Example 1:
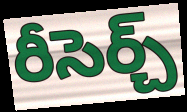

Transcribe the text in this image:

రీసెర్చ్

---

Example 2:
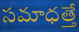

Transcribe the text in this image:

సమాధత్తే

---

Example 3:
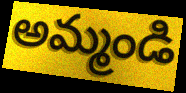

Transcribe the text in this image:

అమ్మండి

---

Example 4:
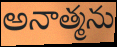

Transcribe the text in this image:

అనాత్మను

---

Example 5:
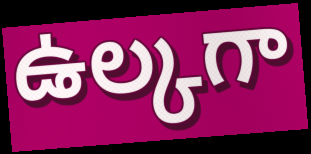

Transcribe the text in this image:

ఉల్కగా